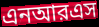
এনআরএস